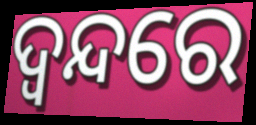
ଦ୍ୱନ୍ଦରେ